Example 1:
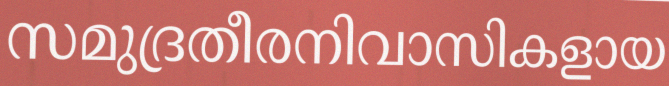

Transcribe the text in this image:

സമുദ്രതീരനിവാസികളായ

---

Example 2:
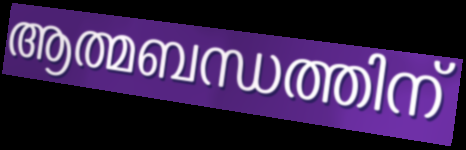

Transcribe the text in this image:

ആത്മബന്ധത്തിന്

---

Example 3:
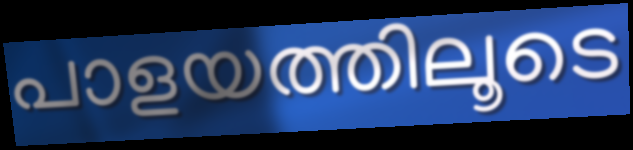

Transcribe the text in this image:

പാളയത്തിലൂടെ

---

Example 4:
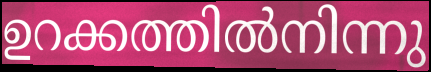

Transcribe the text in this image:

ഉറക്കത്തിൽനിന്നു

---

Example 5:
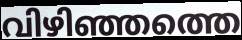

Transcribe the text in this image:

വിഴിഞ്ഞത്തെ